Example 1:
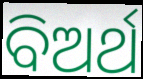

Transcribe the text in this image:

ବିଅର୍ଥ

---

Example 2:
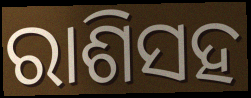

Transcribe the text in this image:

ରାଶିସହ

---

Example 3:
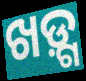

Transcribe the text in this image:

ଖଡ଼୍ଗ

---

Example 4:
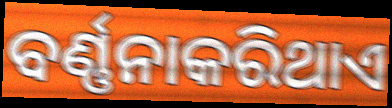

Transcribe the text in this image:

ବର୍ଣ୍ଣନାକରିଥାଏ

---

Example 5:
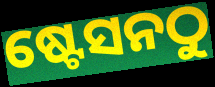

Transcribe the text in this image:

ଷ୍ଟେସନଠୁ